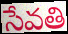
సేవతి